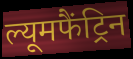
ल्यूमफैंट्रिन